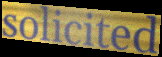
solicited